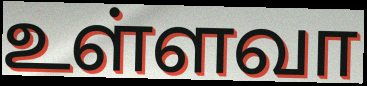
உள்ளவா